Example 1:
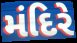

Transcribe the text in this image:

મંદિરે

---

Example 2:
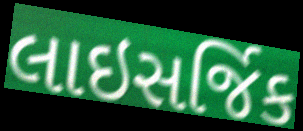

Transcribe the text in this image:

લાઇસર્જિક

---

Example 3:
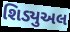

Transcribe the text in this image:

શિડ્યુઅલ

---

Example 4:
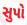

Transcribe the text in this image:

સુપો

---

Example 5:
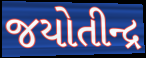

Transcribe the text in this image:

જયોતીન્દ્ર